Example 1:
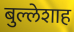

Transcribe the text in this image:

बुल्लेशाह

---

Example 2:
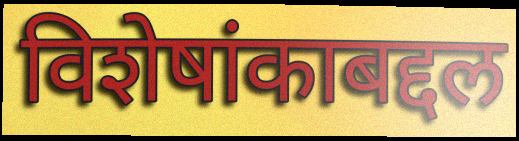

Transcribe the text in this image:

विशेषांकाबद्दल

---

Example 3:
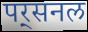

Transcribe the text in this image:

पर्सनल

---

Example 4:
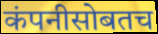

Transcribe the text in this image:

कंपनीसोबतच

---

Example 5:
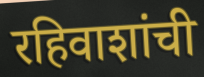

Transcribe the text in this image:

रहिवाशांची